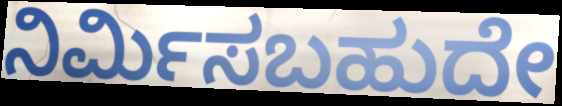
ನಿರ್ಮಿಸಬಹುದೇ